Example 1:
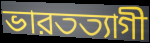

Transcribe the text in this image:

ভারতত্যাগী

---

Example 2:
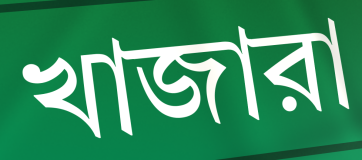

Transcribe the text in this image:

খাজারা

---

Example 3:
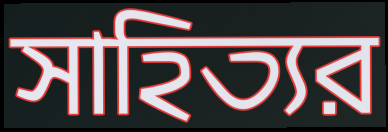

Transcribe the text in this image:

সাহিত্যর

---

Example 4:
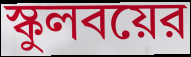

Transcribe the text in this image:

স্কুলবয়ের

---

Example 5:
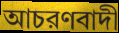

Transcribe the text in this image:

আচরণবাদী